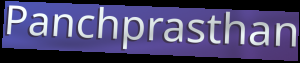
Panchprasthan